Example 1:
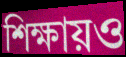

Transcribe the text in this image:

শিক্ষায়ও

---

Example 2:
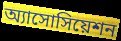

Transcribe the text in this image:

অ্যাসোসিয়েশন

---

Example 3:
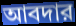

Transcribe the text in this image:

আবদার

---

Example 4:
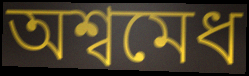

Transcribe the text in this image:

অশ্বমেধ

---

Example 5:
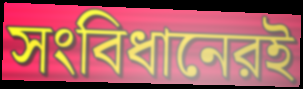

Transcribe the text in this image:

সংবিধানেরই